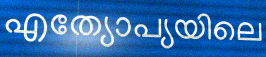
എത്യോപ്യയിലെ